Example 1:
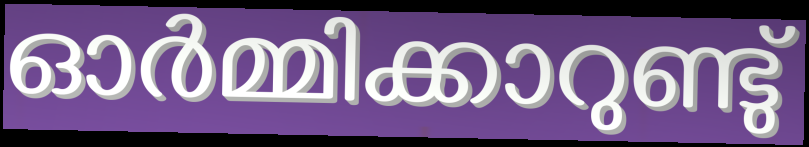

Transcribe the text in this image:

ഓർമ്മിക്കാറുണ്ടു്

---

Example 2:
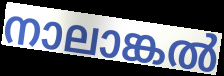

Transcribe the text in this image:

നാലാങ്കൽ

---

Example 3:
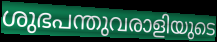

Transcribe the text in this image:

ശുഭപന്തുവരാളിയുടെ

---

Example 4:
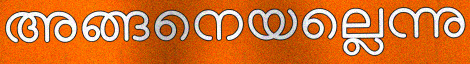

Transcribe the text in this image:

അങ്ങനെയല്ലെന്നു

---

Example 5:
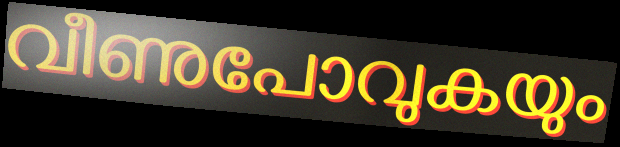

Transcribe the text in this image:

വീണുപോവുകയും